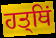
ਹਤ੍ਥਿਂ